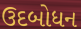
ઉદબોધન